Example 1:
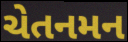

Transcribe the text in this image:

ચેતનમન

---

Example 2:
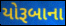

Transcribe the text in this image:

યોરૂબાના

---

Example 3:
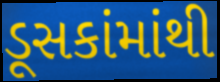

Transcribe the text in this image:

ડૂસકાંમાંથી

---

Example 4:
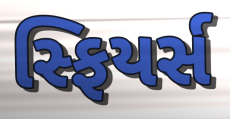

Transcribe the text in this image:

સ્ફિયર્સ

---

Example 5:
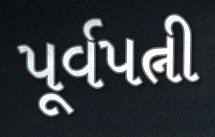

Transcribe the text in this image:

પૂર્વપત્ની